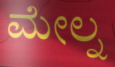
ಮೇಲ್ನ